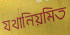
যথানিয়মিত